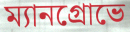
ম্যানগ্রোভে